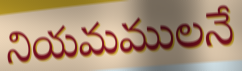
నియమములనే